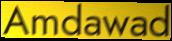
Amdawad